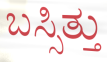
ಬಸ್ಸಿತ್ತು